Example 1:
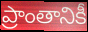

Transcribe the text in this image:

ప్రాంతానికీ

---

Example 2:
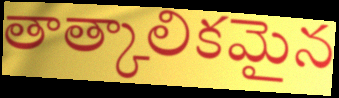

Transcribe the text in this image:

తాత్కాలికమైన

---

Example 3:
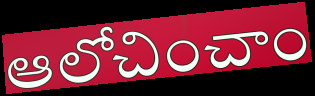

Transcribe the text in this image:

ఆలోచించాం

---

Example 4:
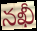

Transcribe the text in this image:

నఖీ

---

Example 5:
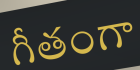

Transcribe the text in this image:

గీతంగా